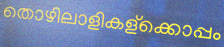
തൊഴിലാളികള്ക്കൊപ്പം